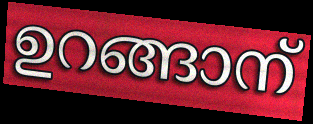
ഉറങ്ങാന്